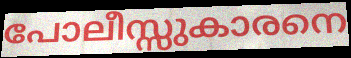
പോലീസ്സുകാരനെ